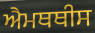
ਐਮਥਥੀਸ